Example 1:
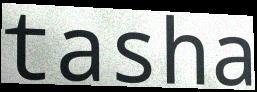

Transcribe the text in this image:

tasha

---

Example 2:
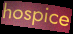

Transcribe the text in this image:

hospice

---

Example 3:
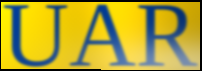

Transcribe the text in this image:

UAR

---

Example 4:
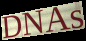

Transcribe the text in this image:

DNAs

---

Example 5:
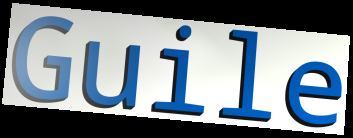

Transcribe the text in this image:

Guile